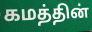
கமத்தின்